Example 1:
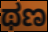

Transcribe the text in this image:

ಥಣ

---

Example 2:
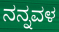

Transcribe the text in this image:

ನನ್ನವಳ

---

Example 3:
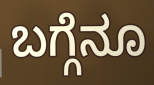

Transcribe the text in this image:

ಬಗ್ಗೆನೂ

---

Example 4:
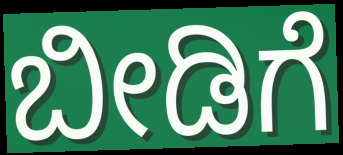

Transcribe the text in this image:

ಬೀಡಿಗೆ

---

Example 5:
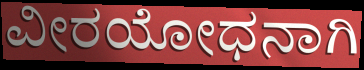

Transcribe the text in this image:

ವೀರಯೋಧನಾಗಿ